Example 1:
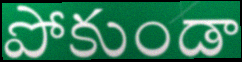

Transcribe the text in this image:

పోకుండా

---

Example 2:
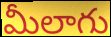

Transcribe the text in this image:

మీలాగు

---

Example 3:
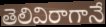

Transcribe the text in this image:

తెలివిరాగానే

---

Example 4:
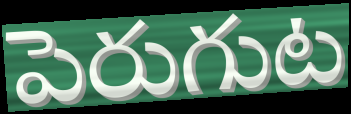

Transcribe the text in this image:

పెరుగుట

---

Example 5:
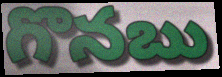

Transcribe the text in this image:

గొనబు